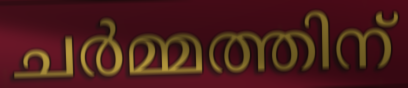
ചർമ്മത്തിന്